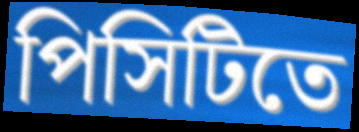
পিসিটিতে